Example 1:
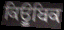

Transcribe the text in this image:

ਕਿਊਬਿਕ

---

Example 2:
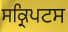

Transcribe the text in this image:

ਸਕ੍ਰਿਪਟਸ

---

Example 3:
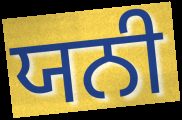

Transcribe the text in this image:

ਯਨੀ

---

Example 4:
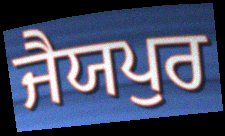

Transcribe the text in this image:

ਜੈਯਪੁਰ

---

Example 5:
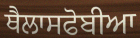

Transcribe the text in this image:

ਥੈਲਾਸਫੋਬੀਆ